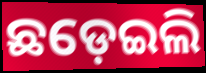
ଛଡ଼େଇଲି